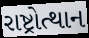
રાષ્ટ્રોત્થાન